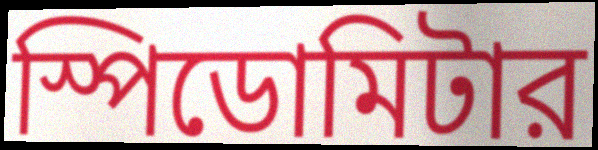
স্পিডোমিটার